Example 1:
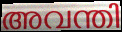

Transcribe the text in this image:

അവന്തി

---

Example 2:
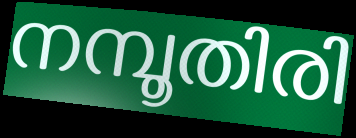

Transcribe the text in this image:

നമ്പൂതിരി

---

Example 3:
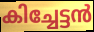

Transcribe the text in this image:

കിച്ചേട്ടൻ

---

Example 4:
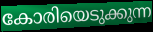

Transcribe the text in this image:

കോരിയെടുക്കുന്ന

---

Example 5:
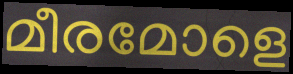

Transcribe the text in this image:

മീരമോളെ